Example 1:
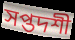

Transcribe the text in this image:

সপ্তদশী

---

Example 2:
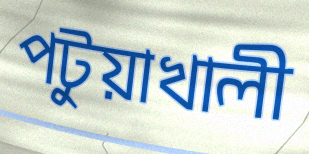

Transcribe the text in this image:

পটুয়াখালী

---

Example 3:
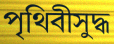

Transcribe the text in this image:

পৃথিবীসুদ্ধ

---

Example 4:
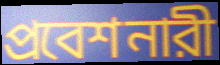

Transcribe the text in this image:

প্রবেশনারী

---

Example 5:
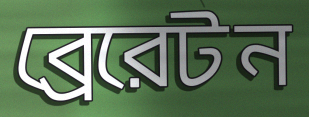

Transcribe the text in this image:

ব্রেরেটন